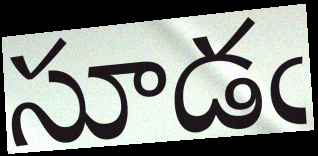
సూడఁ